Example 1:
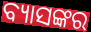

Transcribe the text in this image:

ବ୍ୟାସଙ୍କର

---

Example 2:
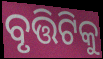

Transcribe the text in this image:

ବୃତ୍ତିଟିକୁ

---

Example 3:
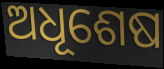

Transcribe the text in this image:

ଅଧୂଶେଷ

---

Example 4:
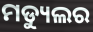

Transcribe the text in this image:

ମଡ୍ୟୁଲର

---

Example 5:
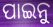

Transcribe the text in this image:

ପାଇନୁ